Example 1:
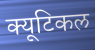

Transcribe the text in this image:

क्यूटिकल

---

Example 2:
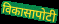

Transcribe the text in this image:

विकासापोटी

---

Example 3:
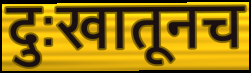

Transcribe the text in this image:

दुःखातूनच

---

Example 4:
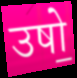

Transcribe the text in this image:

उषो॒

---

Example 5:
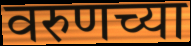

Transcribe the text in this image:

वरुणच्या